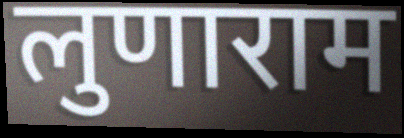
लुणाराम